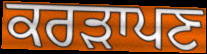
ਕਰੜਾਪਣ